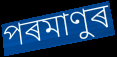
পৰমাণুৰ